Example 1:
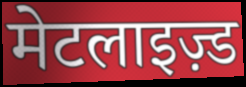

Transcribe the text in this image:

मेटलाइज़्ड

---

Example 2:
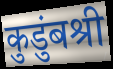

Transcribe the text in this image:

कुडुंबश्री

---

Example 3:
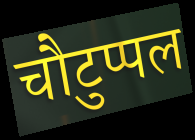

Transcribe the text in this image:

चौटुप्पल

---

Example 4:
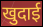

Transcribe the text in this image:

खुदाई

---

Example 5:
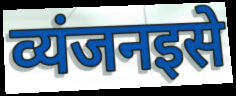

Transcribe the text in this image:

व्यंजनइसे